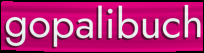
gopalibuch